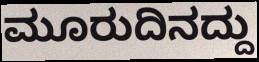
ಮೂರುದಿನದ್ದು